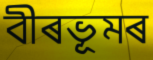
বীৰভূমৰ